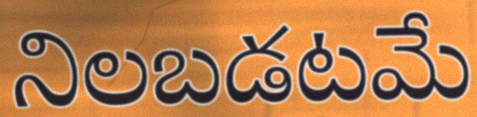
నిలబడటమే